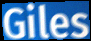
Giles